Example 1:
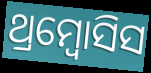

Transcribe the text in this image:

ଥ୍ରମ୍ବୋସିସ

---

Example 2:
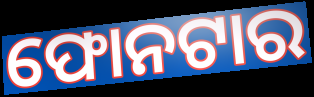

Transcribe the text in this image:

ଫୋନଟାର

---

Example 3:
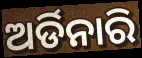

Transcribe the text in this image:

ଅର୍ଡିନାରି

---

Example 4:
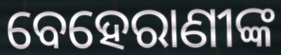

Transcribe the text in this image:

ବେହେରାଣୀଙ୍କ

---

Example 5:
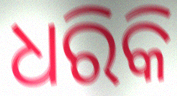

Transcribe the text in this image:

ଧରିକି